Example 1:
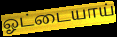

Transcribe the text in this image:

ஓட்டையாய்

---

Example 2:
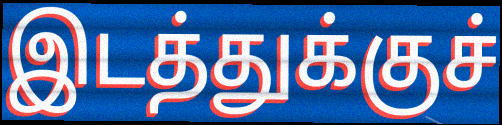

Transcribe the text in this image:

இடத்துக்குச்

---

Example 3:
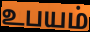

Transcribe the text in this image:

உபயம்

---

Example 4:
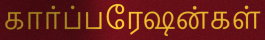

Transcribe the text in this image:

கார்ப்பரேஷன்கள்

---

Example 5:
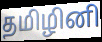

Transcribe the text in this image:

தமிழினி